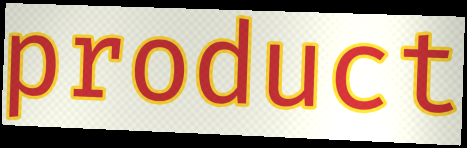
product